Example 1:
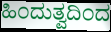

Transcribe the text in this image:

ಹಿಂದುತ್ವದಿಂದ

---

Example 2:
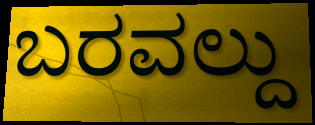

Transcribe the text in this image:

ಬರವಲ್ದು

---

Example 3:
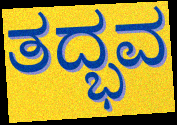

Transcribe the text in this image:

ತದ್ಭವ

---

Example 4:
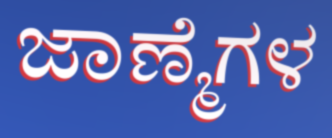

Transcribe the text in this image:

ಜಾಣ್ಮೆಗಳ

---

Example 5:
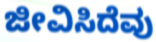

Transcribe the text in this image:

ಜೀವಿಸಿದೆವು